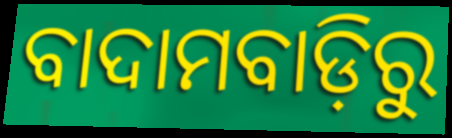
ବାଦାମବାଡ଼ିରୁ